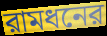
রামধনের